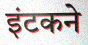
इंटकने